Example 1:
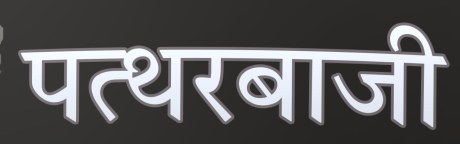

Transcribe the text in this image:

पत्‍थरबाजी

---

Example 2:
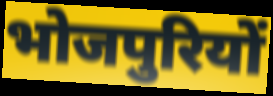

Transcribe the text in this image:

भोजपुरियों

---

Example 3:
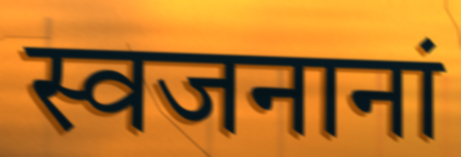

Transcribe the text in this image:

स्वजनानां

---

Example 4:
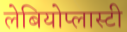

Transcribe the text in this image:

लेबियोप्लास्टी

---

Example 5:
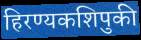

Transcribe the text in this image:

हिरण्यकशिपुकी